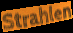
Strahlen